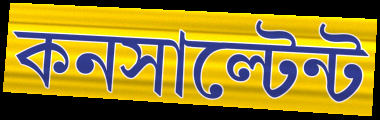
কনসাল্টেন্ট